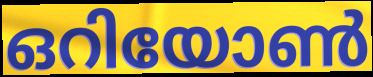
ഒറിയോൺ